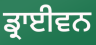
ਡ੍ਰਾਈਵਨ